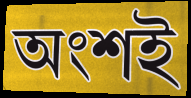
অংশই